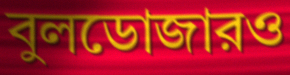
বুলডোজারও